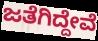
ಜತೆಗಿದ್ದೇವೆ